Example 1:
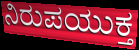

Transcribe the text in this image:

ನಿರುಪಯುಕ್ತ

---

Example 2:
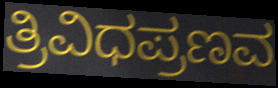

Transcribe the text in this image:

ತ್ರಿವಿಧಪ್ರಣವ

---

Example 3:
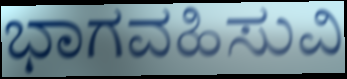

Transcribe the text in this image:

ಭಾಗವಹಿಸುವಿ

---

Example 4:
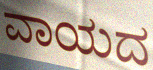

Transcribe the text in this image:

ವಾಯದ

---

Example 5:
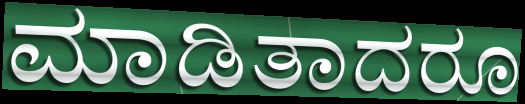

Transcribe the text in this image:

ಮಾಡಿತಾದರೂ